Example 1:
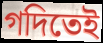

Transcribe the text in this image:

গদিতেই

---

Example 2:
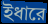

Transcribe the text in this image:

ইধারে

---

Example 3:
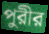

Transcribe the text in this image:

পুরীর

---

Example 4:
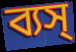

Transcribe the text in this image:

ব্যস্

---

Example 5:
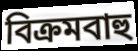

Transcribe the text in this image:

বিক্রমবাহু